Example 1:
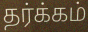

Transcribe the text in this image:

தர்க்கம்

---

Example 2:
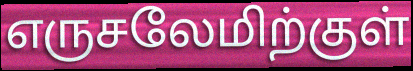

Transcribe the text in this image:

எருசலேமிற்குள்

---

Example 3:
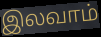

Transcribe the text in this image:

இலவாம்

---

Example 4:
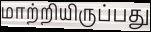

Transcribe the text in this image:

மாற்றியிருப்பது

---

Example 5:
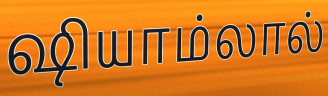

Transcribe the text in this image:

ஷியாம்லால்